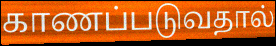
காணப்படுவதால்